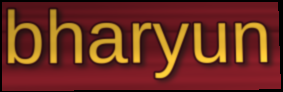
bharyun